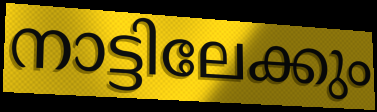
നാട്ടിലേക്കും